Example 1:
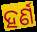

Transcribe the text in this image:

ହର୍ଣ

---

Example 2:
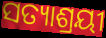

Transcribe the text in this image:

ସତ୍ୟାଶ୍ରୟୀ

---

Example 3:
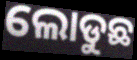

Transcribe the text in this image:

ଲୋଡୁଛ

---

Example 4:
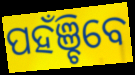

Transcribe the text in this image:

ପହଁଞ୍ଚିବେ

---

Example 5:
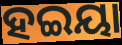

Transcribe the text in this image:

ହଇୟା